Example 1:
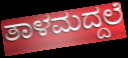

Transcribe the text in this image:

ತಾಳಮದ್ದಲೆ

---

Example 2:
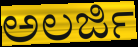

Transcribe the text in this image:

ಅಲರ್ಜಿ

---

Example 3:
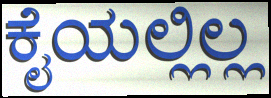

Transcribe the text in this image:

ಕೈಯಲ್ಲಿಲ್ಲ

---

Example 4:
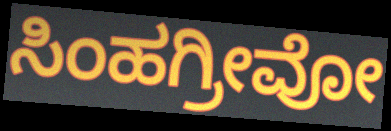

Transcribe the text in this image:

ಸಿಂಹಗ್ರೀವೋ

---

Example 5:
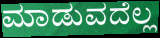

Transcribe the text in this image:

ಮಾಡುವದೆಲ್ಲ